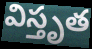
విస్తృత